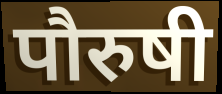
पौरुषी